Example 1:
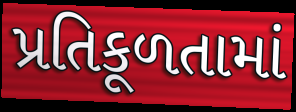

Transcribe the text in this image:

પ્રતિકૂળતામાં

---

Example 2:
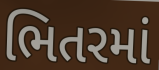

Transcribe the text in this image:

ભિતરમાં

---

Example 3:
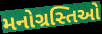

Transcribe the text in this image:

મનોગ્રસ્તિઓ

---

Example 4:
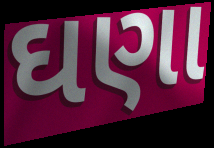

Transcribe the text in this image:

ઘણા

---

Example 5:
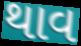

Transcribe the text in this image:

થાવ